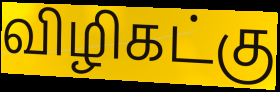
விழிகட்கு